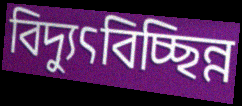
বিদ্যুৎবিচ্ছিন্ন